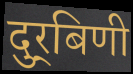
दुर्बिणी